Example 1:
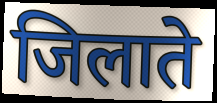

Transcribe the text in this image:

जिलाते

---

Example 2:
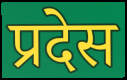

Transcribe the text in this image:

प्रदेस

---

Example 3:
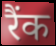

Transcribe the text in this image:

रैंक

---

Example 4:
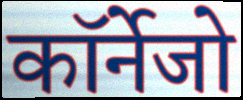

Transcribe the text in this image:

कॉर्नेजो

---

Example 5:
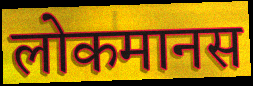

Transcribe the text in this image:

लोकमानस